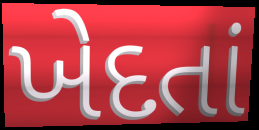
ખેદતાં